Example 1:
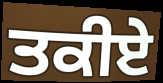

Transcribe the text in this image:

ਤਕੀਏ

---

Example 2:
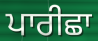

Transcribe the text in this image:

ਪਾਰੀਛਾ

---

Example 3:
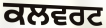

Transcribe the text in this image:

ਕਲਵਰਟ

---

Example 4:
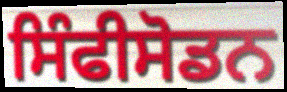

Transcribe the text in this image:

ਸਿੰਫੀਸੋਡਨ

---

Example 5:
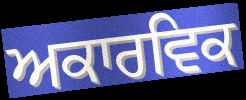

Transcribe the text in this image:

ਅਕਾਰਵਿਕ